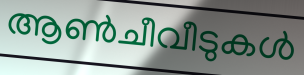
ആൺചീവീടുകൾ